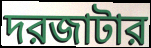
দরজাটার